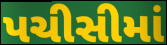
પચીસીમાં